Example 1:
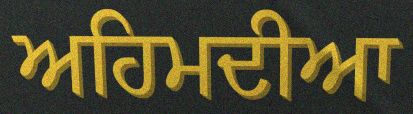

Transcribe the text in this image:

ਅਹਿਮਦੀਆ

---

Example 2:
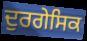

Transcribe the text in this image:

ਦੁਰਗੇਸਿਕ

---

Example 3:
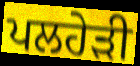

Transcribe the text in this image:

ਪਲਹੇੜੀ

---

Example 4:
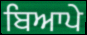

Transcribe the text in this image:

ਬਿਆਪੇ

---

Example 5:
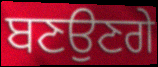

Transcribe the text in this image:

ਬਣਉਣਗੇ